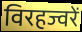
विरहज्वरें